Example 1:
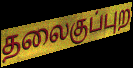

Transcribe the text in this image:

தலைகுப்புற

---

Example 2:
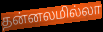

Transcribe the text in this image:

தன்னலமில்லா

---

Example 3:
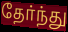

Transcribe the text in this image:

தேர்ந்து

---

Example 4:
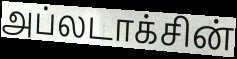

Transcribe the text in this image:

அப்லடாக்சின்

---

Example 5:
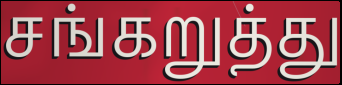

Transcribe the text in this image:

சங்கறுத்து